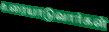
உரையாடுவார்கள்